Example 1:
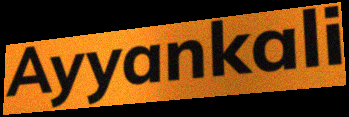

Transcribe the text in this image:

Ayyankali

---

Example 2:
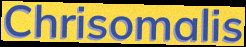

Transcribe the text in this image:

Chrisomalis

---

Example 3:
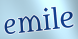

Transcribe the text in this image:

emile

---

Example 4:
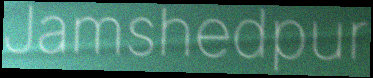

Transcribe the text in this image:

Jamshedpur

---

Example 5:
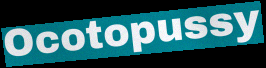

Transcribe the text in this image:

Ocotopussy